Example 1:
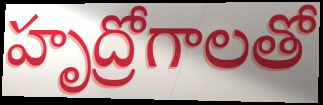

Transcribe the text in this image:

హృద్రోగాలతో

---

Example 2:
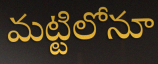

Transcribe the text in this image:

మట్టిలోనూ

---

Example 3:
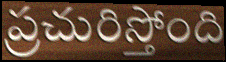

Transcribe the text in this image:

ప్రచురిస్తోంది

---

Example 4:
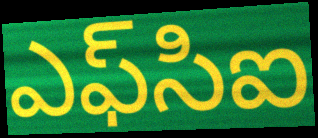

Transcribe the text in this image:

ఎఫ్‌సిఐ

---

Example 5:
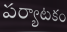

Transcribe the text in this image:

పర్యాటకం